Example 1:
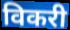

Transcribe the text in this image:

विकरी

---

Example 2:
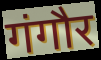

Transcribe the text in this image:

गंगौर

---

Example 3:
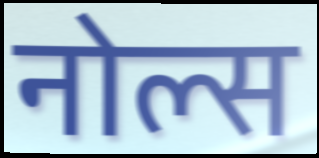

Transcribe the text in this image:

नोल्स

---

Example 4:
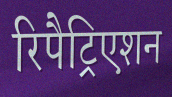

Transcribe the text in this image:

रिपैट्रिएशन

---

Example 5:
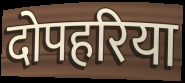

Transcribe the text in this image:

दोपहरिया